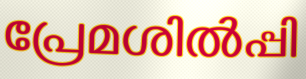
പ്രേമശിൽപ്പി